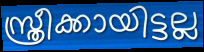
സ്ത്രീക്കായിട്ടല്ല